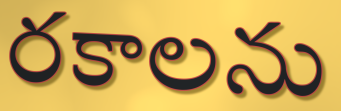
రకాలను